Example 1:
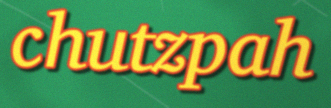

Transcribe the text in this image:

chutzpah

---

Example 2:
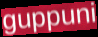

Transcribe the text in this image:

guppuni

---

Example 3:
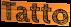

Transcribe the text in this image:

Tatto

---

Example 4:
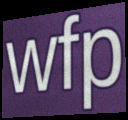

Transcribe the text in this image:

wfp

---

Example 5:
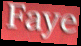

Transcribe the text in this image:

Faye